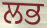
ਲਭ